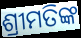
ଶ୍ରୀମତିଙ୍କ